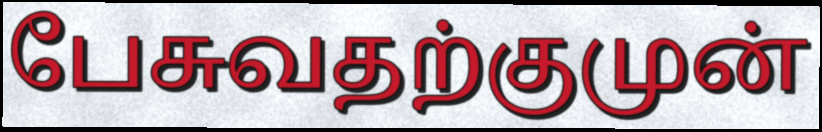
பேசுவதற்குமுன்